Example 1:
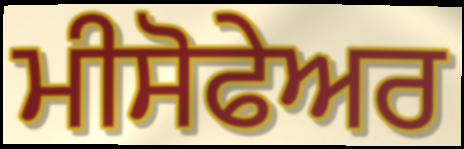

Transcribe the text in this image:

ਮੀਸੋਫੇਅਰ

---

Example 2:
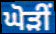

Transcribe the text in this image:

ਘੋੜੀਂ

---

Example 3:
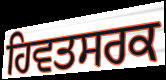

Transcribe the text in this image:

ਹਿਵਤਸਰਕ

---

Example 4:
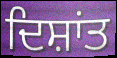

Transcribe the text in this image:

ਦਿਸ਼ਾਂਤ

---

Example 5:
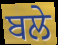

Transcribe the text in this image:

ਬਲੇ